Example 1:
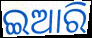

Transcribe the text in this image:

ଇଆରି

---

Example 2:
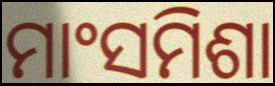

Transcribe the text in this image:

ମାଂସମିଶା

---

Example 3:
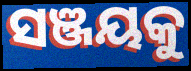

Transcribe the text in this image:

ସଞ୍ଜୟକୁ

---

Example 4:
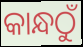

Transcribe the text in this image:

କାନ୍ଧଠୁଁ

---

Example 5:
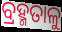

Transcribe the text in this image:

ବ୍ରହ୍ମତାଳୁ